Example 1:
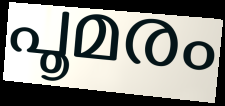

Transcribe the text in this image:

പൂമരം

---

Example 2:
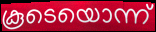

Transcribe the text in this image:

കൂടെയൊന്ന്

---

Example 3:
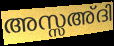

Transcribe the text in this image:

അസ്സഅ്ദി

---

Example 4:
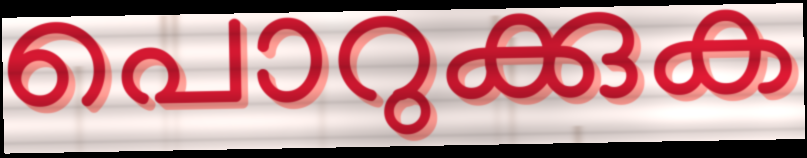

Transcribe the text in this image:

പൊറുക്കുക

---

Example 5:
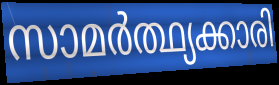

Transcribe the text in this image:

സാമർത്ഥ്യക്കാരി